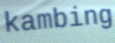
kambing